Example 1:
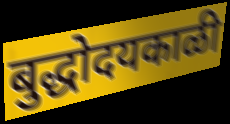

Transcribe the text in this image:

बुद्धोदयकाळी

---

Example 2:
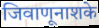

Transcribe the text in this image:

जिवाणूनाशके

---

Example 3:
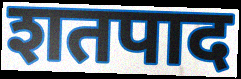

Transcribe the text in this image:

शतपाद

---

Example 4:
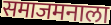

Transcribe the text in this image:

समाजमनाला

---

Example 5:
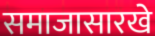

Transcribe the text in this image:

समाजासारखे